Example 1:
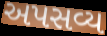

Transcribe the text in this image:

અપસવ્ય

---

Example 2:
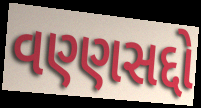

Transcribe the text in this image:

વણ્ણસદ્દો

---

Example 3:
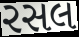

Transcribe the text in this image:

રસલ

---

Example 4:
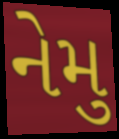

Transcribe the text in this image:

નેમુ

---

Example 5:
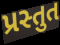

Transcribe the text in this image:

પ્રસ્તુત